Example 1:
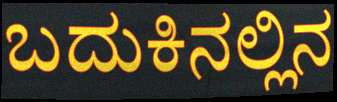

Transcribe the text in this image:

ಬದುಕಿನಲ್ಲಿನ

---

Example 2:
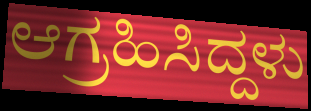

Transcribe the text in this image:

ಆಗ್ರಹಿಸಿದ್ದಳು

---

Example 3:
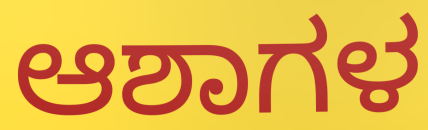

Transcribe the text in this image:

ಆಶಾಗಳ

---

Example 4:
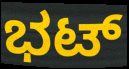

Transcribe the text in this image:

ಭಟ್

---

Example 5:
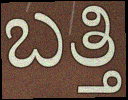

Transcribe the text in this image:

ಬತ್ತಿ